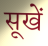
सूखें